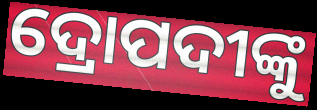
ଦ୍ରୋପଦୀଙ୍କୁ